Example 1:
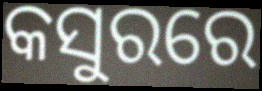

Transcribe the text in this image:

କସୁରରେ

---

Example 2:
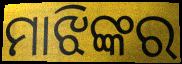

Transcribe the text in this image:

ମାଝିଙ୍କର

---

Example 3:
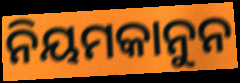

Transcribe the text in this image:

ନିୟମକାନୁନ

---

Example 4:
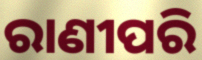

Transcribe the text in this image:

ରାଣୀପରି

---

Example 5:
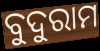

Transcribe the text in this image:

ବୁଦୁରାମ